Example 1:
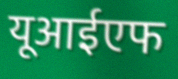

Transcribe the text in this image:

यूआईएफ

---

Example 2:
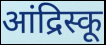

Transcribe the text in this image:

आंद्रिस्कू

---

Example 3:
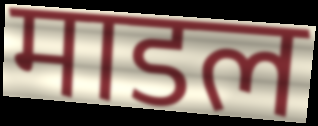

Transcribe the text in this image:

माडल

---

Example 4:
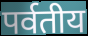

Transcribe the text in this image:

पर्वतीय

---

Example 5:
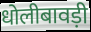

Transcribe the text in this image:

धोलीबावड़ी